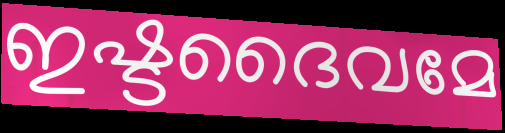
ഇഷ്ടദൈവമേ